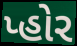
પ્હોર